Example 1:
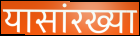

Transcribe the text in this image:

यासांरख्या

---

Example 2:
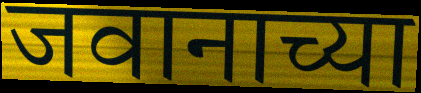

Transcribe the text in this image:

जवानाच्या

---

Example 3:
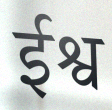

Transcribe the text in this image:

ईश्व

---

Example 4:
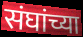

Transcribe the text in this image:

संघांच्या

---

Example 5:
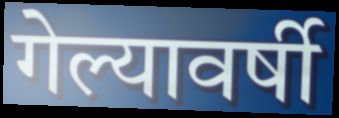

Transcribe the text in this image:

गेल्यावर्षी